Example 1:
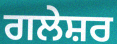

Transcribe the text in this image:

ਗਲੇਸ਼ਰ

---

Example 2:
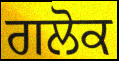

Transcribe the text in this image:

ਗਲੋਕ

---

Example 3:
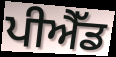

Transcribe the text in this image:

ਪੀਐੱਡ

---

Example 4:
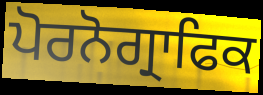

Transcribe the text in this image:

ਪੋਰਨੋਗ੍ਰਾਫਿਕ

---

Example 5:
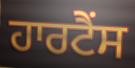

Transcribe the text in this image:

ਹਾਰਟੈਂਸ